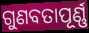
ଗୁଣବତାପୂର୍ଣ୍ଣ